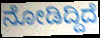
ನೋಡಿದ್ದಿದೆ